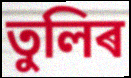
তুলিৰ